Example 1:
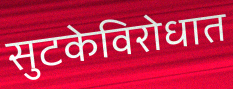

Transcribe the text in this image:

सुटकेविरोधात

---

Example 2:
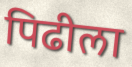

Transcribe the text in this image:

पिढीला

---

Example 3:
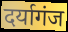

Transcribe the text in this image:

दर्यागंज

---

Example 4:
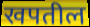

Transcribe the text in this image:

खपतील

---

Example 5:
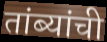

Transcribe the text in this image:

तांब्यांची